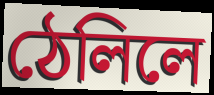
ঠেলিলে